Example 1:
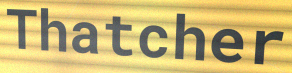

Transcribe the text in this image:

Thatcher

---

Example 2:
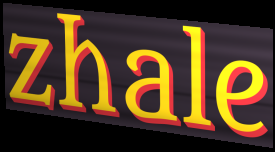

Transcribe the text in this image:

zhale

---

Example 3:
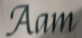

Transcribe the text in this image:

Aam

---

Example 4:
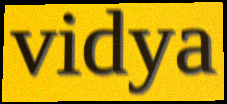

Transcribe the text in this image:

vidya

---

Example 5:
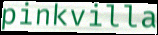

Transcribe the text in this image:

pinkvilla